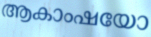
ആകാംഷയോ